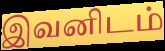
இவனிடம்